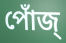
পোঁজ্